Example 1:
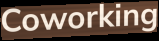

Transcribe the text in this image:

Coworking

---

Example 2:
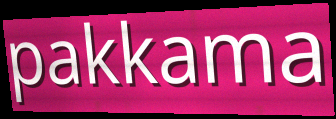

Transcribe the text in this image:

pakkama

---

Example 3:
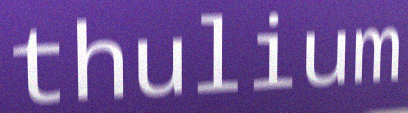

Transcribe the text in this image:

thulium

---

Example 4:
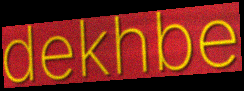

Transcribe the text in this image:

dekhbe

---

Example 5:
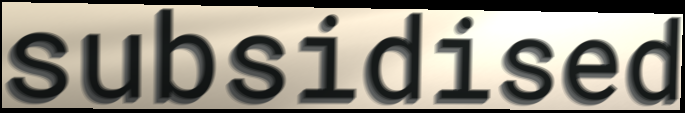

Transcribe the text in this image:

subsidised